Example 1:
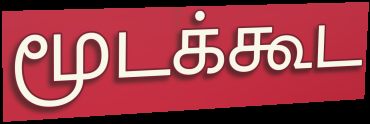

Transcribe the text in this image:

மூடக்கூட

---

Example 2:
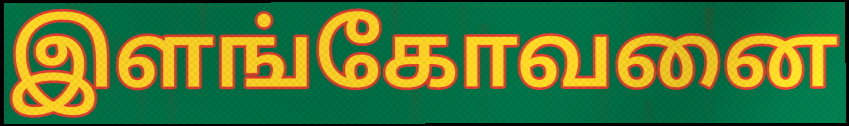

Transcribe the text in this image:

இளங்கோவனை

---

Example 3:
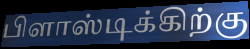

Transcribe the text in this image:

பிளாஸ்டிக்கிற்கு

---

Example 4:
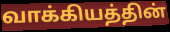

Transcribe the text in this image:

வாக்கியத்தின்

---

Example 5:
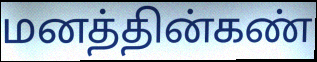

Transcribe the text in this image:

மனத்தின்கண்